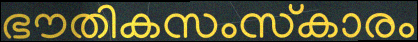
ഭൗതികസംസ്‌കാരം